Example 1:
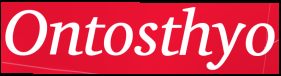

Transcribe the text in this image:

Ontosthyo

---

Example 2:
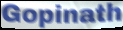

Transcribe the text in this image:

Gopinath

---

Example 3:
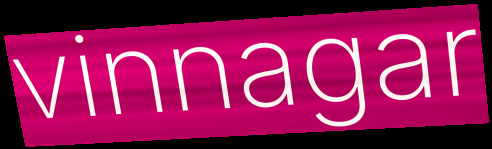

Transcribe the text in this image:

vinnagar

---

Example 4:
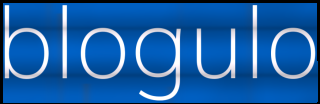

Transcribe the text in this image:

blogulo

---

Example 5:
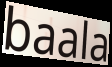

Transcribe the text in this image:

baala